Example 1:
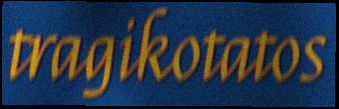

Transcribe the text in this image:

tragikotatos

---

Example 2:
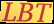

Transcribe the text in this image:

LBT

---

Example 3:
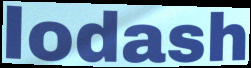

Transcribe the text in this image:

lodash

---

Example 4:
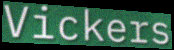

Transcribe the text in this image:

Vickers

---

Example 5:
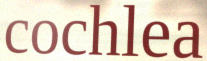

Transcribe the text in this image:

cochlea